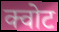
क्वोट